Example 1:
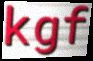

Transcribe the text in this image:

kgf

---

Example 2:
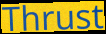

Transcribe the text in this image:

Thrust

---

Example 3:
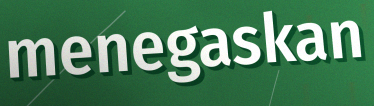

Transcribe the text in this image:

menegaskan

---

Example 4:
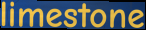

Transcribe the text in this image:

limestone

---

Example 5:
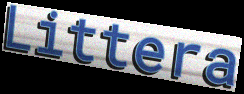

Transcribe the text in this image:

Littera